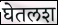
घेतलश